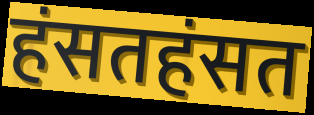
हंसतहंसत